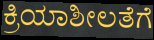
ಕ್ರಿಯಾಶೀಲತೆಗೆ